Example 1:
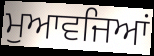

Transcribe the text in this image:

ਮੁਆਵਜਿਆਂ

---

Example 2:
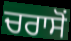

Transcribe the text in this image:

ਚਰਾਸੋਂ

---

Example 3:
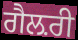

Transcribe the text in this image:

ਗੈਲ਼ਰੀ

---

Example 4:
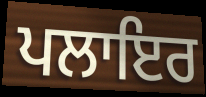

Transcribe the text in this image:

ਪਲਾਇਰ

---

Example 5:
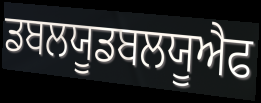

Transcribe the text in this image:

ਡਬਲਯੂਡਬਲਯੂਐਫ